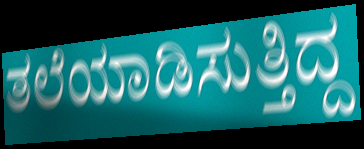
ತಲೆಯಾಡಿಸುತ್ತಿದ್ದ